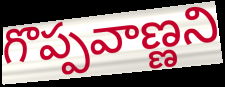
గొప్పవాణ్ణని